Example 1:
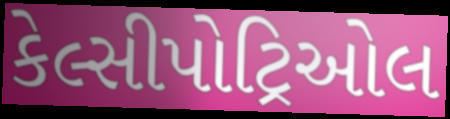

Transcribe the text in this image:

કેલ્સીપોટ્રિઓલ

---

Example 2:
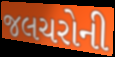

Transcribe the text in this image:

જલચરોની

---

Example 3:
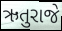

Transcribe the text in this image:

ઋતુરાજે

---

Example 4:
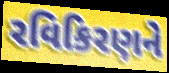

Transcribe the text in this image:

રવિકિરણને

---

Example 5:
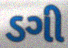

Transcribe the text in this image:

ડગી